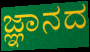
ಜ್ಞಾನದ